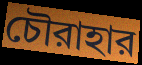
চৌরাহার